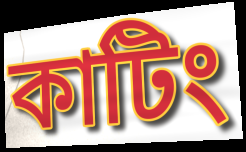
কাটিং